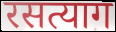
रसत्याग